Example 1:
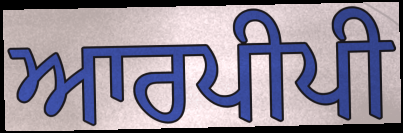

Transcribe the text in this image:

ਆਰਪੀਪੀ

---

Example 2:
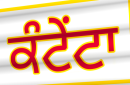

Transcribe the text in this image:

ਕੰਟੇਂਟਾ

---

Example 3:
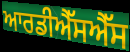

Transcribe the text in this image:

ਆਰਡੀਐੱਸਐੱਸ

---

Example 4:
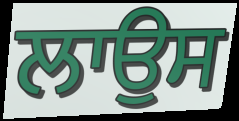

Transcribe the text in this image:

ਲਾਉਸ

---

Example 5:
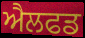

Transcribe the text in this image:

ਐਲਫਡ